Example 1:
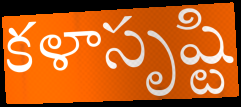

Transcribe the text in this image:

కళాసృష్టి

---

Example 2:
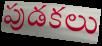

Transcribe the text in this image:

పుడకలు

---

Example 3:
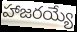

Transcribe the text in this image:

హాజరయ్యే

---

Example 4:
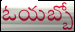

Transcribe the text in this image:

ఓయబ్బో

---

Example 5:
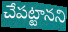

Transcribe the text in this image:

చేపట్టానని